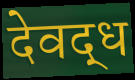
देवद्ध